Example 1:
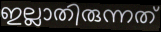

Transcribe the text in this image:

ഇല്ലാതിരുന്നത്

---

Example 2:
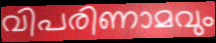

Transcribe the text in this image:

വിപരിണാമവും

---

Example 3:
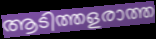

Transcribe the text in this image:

ആടിത്തളരാത്ത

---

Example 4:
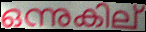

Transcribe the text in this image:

ഒന്നുകില്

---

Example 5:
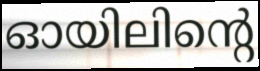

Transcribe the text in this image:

ഓയിലിന്റെ